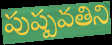
పుష్పవతిని